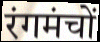
रंगमंचों